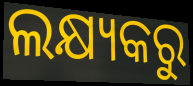
ଲକ୍ଷ୍ୟକରୁ